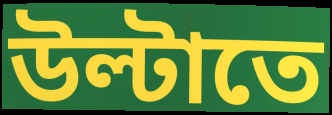
উল্টাতে